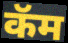
कॅम